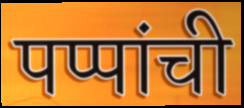
पप्पांची